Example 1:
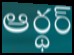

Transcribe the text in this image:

ఆర్థర్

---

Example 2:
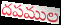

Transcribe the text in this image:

దపముల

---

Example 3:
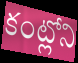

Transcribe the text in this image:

కంట్లోని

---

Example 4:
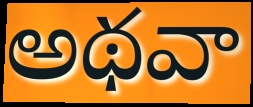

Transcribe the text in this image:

అథవా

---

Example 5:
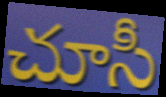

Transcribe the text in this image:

చూసీ